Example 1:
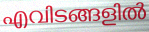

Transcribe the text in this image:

എവിടങ്ങളിൽ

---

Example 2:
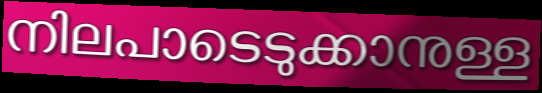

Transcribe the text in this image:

നിലപാടെടുക്കാനുള്ള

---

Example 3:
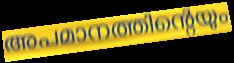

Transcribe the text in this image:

അപമാനത്തിന്റെയും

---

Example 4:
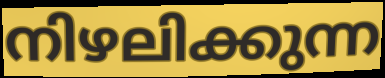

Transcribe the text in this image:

നിഴലിക്കുന്ന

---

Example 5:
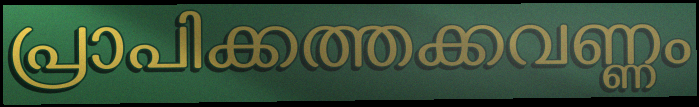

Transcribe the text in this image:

പ്രാപിക്കത്തക്കവണ്ണം